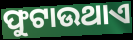
ଫୁଟାଉଥାଏ